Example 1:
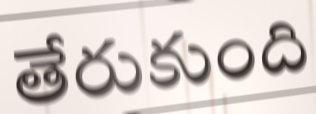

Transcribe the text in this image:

తేరుకుంది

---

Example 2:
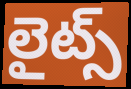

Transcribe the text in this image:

లైట్స్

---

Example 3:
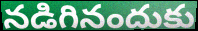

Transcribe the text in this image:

నడిగినందుకు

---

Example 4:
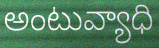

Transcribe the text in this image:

అంటువ్యాధి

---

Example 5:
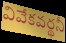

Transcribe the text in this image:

వివేకవర్థనీ